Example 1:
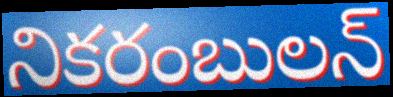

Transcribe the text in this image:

నికరంబులన్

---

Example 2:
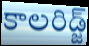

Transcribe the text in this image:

కాలరిడ్జ్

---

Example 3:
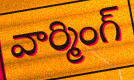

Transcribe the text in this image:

వార్మింగ్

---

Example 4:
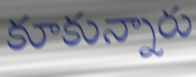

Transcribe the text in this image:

కూకున్నారు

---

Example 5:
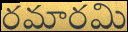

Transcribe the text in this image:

రమారమి